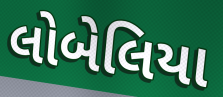
લોબેલિયા